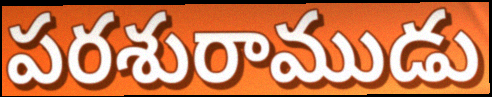
పరశురాముడు